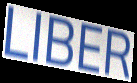
LIBER